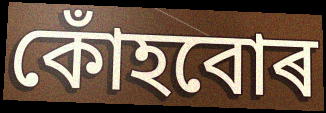
কোঁহবোৰ